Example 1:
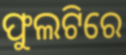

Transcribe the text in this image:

ଫୁଲଟିରେ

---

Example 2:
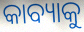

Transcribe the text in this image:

କାବ୍ୟାକୁ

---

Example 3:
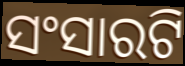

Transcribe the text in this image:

ସଂସାରଟି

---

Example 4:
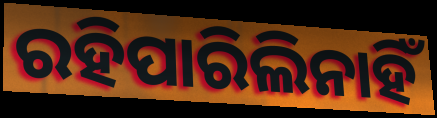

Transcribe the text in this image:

ରହିପାରିଲିନାହିଁ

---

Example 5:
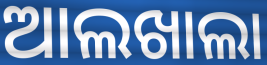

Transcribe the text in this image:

ଆଲଖାଲା